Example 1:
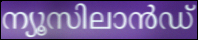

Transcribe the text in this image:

ന്യൂസിലാൻഡ്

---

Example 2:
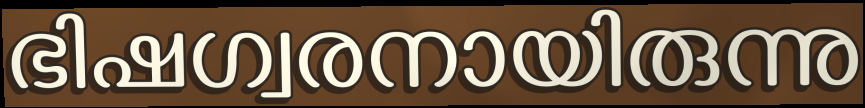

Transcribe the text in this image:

ഭിഷഗ്വരനായിരുന്നു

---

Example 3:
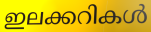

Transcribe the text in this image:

ഇലക്കറികൾ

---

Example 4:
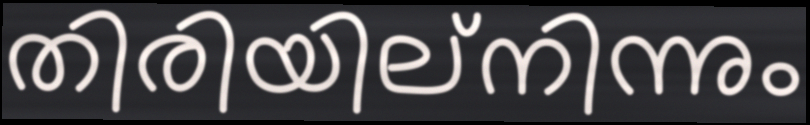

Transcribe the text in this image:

തിരിയില്നിന്നും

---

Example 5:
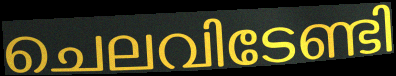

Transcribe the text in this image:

ചെലവിടേണ്ടി